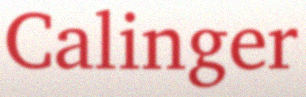
Calinger